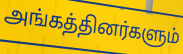
அங்கத்தினர்களும்